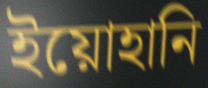
ইয়োহানি